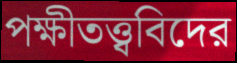
পক্ষীতত্ত্ববিদের